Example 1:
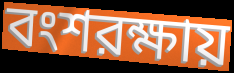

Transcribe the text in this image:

বংশরক্ষায়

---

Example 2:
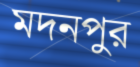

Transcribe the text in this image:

মদনপুর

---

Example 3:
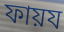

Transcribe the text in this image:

ফায়য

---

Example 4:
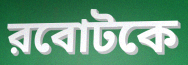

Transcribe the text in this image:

রবোটকে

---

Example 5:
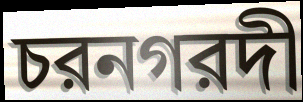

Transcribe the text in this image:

চরনগরদী